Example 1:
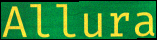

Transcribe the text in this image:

Allura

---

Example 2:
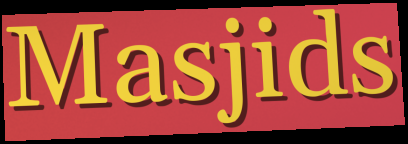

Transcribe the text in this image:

Masjids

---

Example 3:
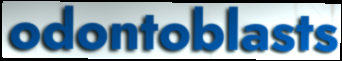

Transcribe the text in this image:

odontoblasts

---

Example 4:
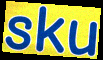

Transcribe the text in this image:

sku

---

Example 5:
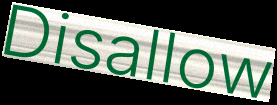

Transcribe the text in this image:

Disallow